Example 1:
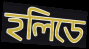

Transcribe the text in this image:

হলিডে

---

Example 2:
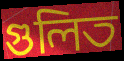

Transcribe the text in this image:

গুলিত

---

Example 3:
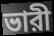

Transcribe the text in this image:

ভারী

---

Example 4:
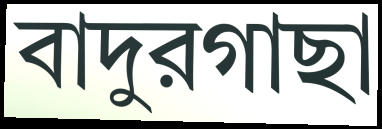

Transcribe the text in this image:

বাদুরগাছা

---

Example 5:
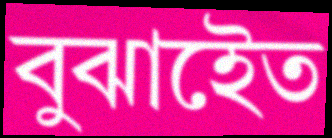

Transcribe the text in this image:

বুঝাইেত